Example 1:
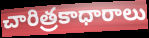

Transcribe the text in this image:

చారిత్రకాధారాలు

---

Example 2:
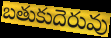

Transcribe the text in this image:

బతుకుదెరువు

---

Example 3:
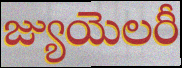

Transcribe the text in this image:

జ్యుయెలరీ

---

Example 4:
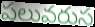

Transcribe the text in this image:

పలువరుస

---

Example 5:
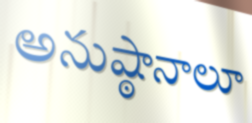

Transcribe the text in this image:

అనుష్ఠానాలూ